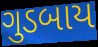
ગુડબાય